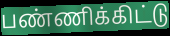
பண்ணிக்கிட்டு